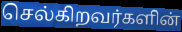
செல்கிறவர்களின்